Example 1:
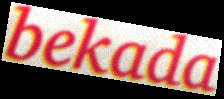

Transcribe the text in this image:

bekada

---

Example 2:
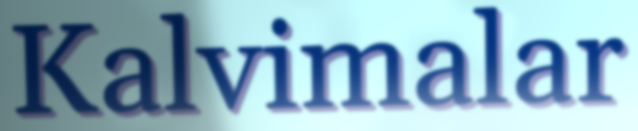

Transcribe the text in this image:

Kalvimalar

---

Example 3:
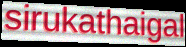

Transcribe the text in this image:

sirukathaigal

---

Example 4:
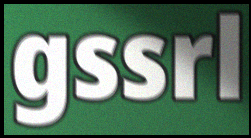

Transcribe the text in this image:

gssrl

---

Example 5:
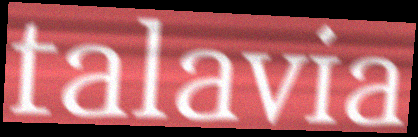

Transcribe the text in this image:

talavia